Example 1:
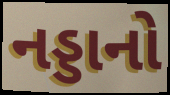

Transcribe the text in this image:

નડ્ડાનો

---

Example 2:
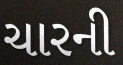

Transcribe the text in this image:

ચારની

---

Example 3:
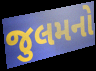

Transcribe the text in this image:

જુલમનો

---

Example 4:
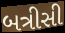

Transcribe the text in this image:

બત્રીસી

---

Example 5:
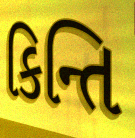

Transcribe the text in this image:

કિન્તિ